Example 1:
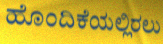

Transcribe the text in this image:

ಹೊಂದಿಕೆಯಲ್ಲಿರಲು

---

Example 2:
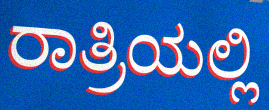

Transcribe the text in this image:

ರಾತ್ರಿಯಲ್ಲಿ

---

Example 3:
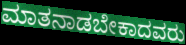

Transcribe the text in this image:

ಮಾತನಾಡಬೇಕಾದವರು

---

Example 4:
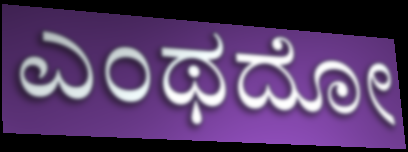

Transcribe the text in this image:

ಎಂಥದೋ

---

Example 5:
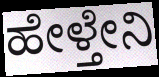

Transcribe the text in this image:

ಹೇಳ್ತೇನಿ